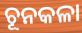
ଚୂନକଳା